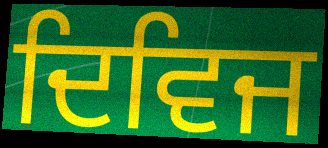
ਦਿਵਿਜ